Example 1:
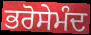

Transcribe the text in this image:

ਭਰੋਸੇਮੰਦ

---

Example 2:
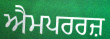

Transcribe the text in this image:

ਐਮਪਰਰਜ਼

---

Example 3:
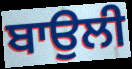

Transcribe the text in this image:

ਬਾਉਲੀ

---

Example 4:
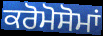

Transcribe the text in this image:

ਕਰੋਮੋਸੋਮਾਂ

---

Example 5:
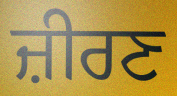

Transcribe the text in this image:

ਜ਼ੀਰਣ